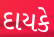
દાયકે